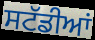
ਸਟੱਡੀਆਂ